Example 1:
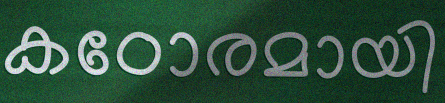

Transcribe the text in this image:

കഠോരമായി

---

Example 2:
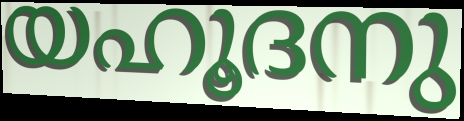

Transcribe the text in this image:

യഹൂദനു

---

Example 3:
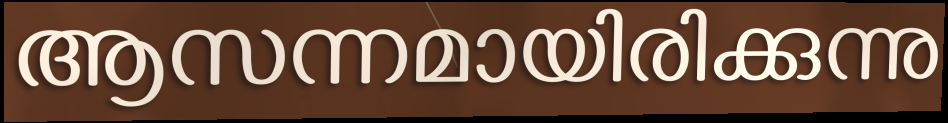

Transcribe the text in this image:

ആസന്നമായിരിക്കുന്നു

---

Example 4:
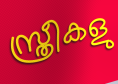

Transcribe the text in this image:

സ്ത്രീകളു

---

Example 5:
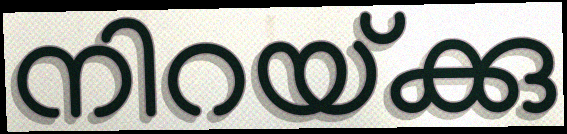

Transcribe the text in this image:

നിറയ്‌ക്കു